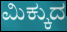
ಮಿಕ್ಕುದ